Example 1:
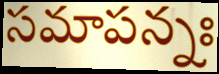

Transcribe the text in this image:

సమాపన్నః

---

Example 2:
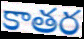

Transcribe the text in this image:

కాతర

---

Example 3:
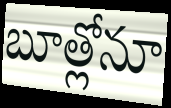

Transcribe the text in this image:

బూత్లోనూ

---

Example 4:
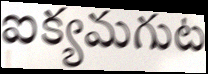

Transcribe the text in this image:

ఐక్యమగుట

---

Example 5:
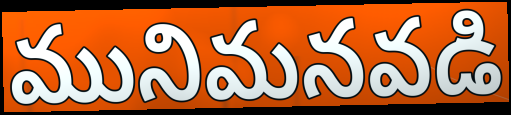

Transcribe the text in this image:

మునిమనవడి